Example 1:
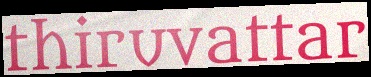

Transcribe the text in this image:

thiruvattar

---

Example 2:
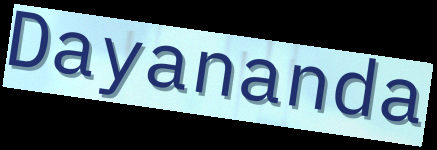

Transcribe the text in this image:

Dayananda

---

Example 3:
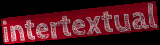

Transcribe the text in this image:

intertextual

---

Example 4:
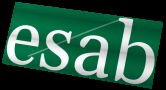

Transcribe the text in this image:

esab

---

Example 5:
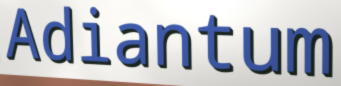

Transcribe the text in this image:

Adiantum